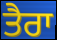
ਤੈਰਾ